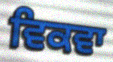
ਵਿਕਵਾ